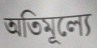
অতিমূল্যে